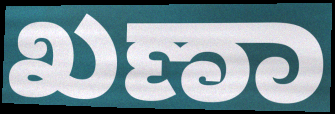
ಖಣಾ